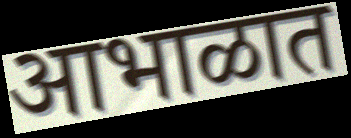
आभाळात